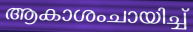
ആകാശംചായിച്ച്